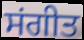
ਸਂਗੀਤ